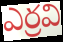
ఎర్రవి